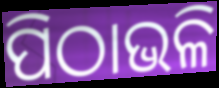
ପିଠାଭଳି